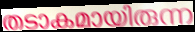
തടാകമായിരുന്ന